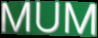
MUM